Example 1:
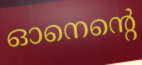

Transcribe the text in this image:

ഓനെന്റെ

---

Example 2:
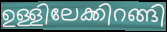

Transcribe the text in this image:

ഉള്ളിലേക്കിറങ്ങി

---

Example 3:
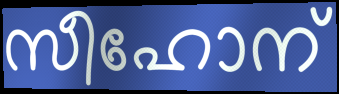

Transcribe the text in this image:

സീഹോന്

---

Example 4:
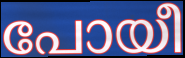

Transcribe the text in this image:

പോയീ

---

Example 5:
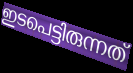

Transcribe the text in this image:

ഇടപെട്ടിരുന്നത്